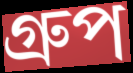
গ্ৰুপ